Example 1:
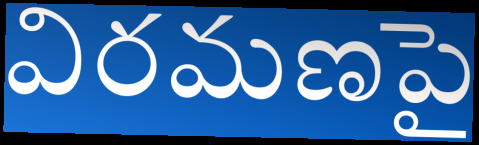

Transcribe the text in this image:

విరమణపై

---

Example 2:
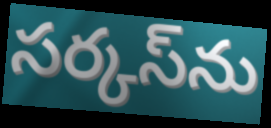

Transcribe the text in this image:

సర్కస్‌ను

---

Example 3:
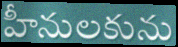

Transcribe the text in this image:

హీనులకును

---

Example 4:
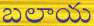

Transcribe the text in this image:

బలాయ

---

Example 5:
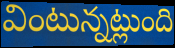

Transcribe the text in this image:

వింటున్నట్లుంది